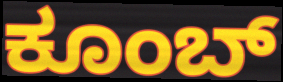
ಕೂಂಬ್